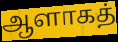
ஆளாகத்